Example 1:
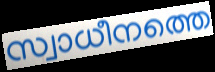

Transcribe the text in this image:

സ്വാധീനത്തെ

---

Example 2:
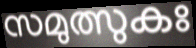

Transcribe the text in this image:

സമുത്സുകഃ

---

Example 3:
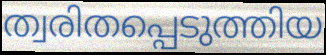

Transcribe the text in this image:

ത്വരിതപ്പെടുത്തിയ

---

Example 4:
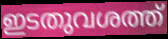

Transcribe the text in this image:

ഇടതുവശത്ത്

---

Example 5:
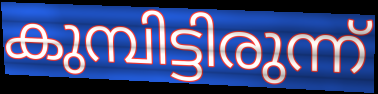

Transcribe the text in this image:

കുമ്പിട്ടിരുന്ന്